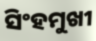
ସିଂହମୁଖୀ